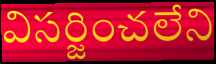
విసర్జించలేని